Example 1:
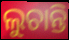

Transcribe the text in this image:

ଲୁଚାନ୍ତି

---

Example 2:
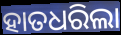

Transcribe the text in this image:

ହାତଧରିଲା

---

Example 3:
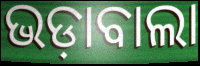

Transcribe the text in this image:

ଭଡ଼ାବାଲା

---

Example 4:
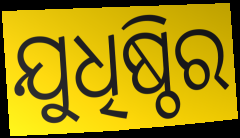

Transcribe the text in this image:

ଯୁଧିଷ୍ଠିର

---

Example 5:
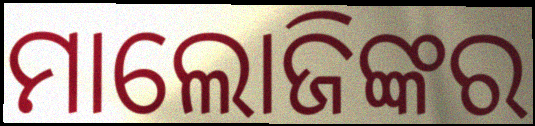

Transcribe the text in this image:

ମାଲୋଜିଙ୍କର